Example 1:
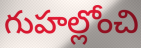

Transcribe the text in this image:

గుహల్లోంచి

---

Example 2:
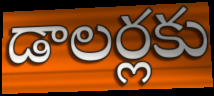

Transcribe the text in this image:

డాలర్లకు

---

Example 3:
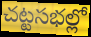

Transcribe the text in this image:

చట్టసభల్లో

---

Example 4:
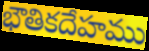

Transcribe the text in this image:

భౌతికదేహము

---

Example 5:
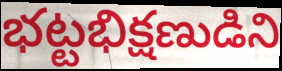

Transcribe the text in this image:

భట్టభిక్షణుడిని